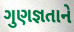
ગુણજ્ઞતાને